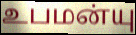
உபமன்யு